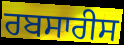
ਰਬਸਾਰੀਸ